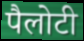
पैलोटी